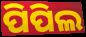
ପିପିଲ